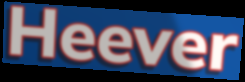
Heever